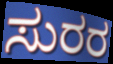
ಸುರರ